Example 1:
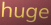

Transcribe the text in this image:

huge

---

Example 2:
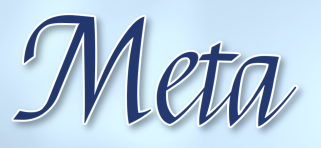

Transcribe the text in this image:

Meta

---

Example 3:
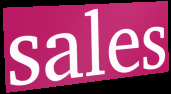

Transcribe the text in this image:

sales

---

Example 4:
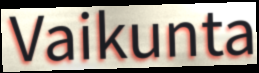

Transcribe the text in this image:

Vaikunta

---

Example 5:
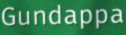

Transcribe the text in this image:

Gundappa